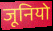
जूनियो